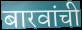
बारवांची